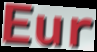
Eur